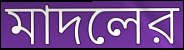
মাদলের